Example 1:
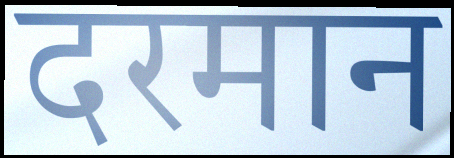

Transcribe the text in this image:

दरमान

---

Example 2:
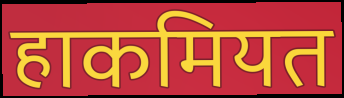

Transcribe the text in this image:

हाकमियत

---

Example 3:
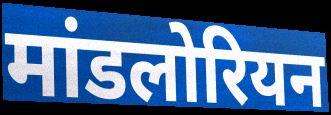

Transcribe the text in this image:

मांडलोरियन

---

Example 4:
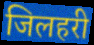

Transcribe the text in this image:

जिलहरी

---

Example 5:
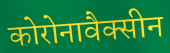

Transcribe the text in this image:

कोरोनावैक्सीन